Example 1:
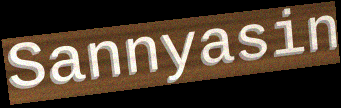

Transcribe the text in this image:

Sannyasin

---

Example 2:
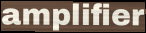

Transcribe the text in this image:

amplifier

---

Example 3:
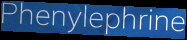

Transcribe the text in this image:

Phenylephrine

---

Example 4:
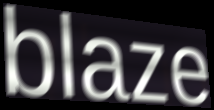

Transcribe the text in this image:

blaze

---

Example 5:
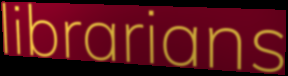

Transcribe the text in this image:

librarians